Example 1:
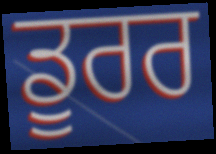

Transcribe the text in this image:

ਡੂਰਰ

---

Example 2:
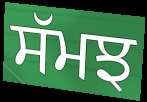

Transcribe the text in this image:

ਸੱਮਝ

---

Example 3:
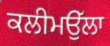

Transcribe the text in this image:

ਕਲੀਮਉੱਲਾ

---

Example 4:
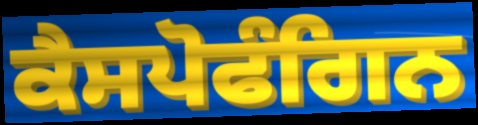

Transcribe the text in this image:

ਕੈਸਪੋਫੰਗਿਨ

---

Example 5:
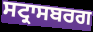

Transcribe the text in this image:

ਸਟ੍ਰਾਸਬਰਗ